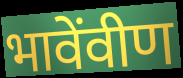
भावेंवीण